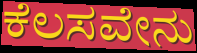
ಕೆಲಸವೇನು